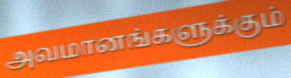
அவமானங்களுக்கும்